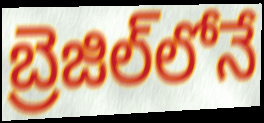
బ్రెజిల్‌లోనే